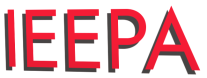
IEEPA